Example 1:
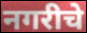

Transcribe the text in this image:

नगरीचे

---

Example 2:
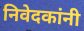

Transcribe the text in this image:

निवेदकांनी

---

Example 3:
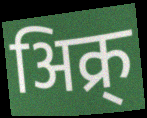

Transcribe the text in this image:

अिक्र्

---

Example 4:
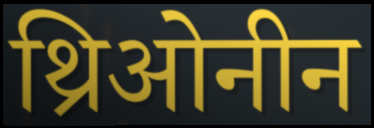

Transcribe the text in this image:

थ्रिओनीन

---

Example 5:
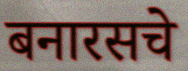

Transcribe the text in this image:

बनारसचे